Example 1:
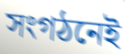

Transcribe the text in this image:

সংগঠনেই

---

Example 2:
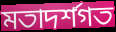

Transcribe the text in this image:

মতাদৰ্শগত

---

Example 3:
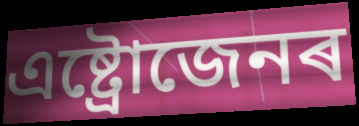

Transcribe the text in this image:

এষ্ট্ৰোজেনৰ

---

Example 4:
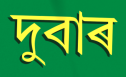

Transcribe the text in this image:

দুবাৰ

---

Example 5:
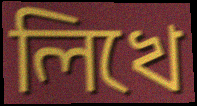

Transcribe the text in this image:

লিখে